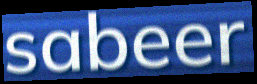
sabeer